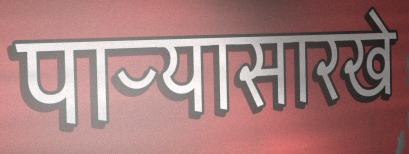
पाऱ्यासारखे